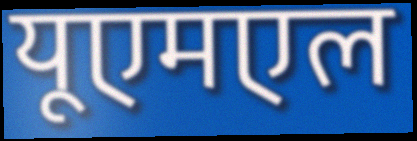
यूएमएल